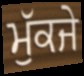
ਮੁੱਕਜੇ